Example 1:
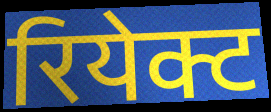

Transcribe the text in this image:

रियेक्ट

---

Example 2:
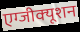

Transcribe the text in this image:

एग्जीक्यूशन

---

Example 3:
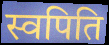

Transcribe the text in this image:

स्वपिति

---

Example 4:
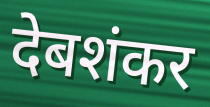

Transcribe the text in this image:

देबशंकर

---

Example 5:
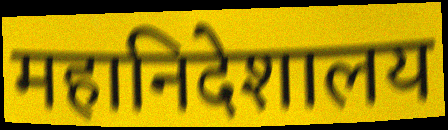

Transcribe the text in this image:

महानिदेशालय